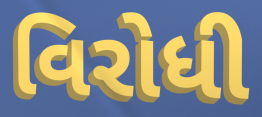
વિરોધી